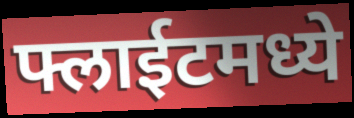
फ्लाईटमध्ये